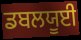
ਡਬਲਯੂਈ